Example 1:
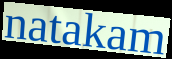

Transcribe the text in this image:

natakam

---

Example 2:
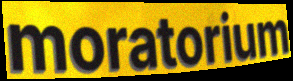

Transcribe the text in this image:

moratorium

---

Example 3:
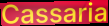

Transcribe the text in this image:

Cassaria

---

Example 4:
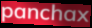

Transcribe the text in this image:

panchax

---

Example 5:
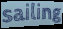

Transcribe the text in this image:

sailing